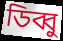
ডিব্বু